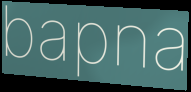
bapna